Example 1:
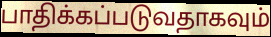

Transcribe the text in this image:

பாதிக்கப்படுவதாகவும்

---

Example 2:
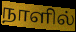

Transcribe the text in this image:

நாளில்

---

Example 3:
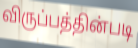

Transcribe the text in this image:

விருப்பத்தின்படி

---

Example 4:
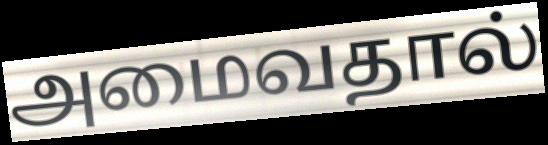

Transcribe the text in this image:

அமைவதால்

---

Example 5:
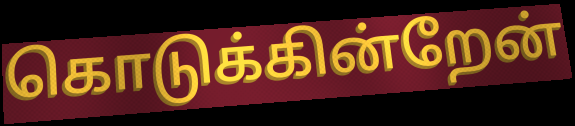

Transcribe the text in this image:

கொடுக்கின்றேன்